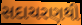
સદાચરણથી